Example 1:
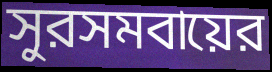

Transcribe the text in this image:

সুরসমবায়ের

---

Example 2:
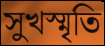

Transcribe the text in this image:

সুখস্মৃতি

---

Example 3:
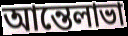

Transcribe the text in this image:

আন্তেলাভা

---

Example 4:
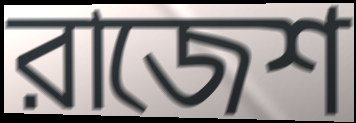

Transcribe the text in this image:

রাজেশ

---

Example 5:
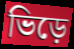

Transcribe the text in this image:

ভিড়ে